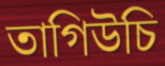
তাগিউচি